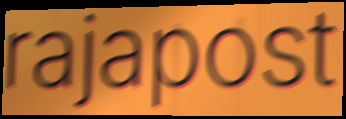
rajapost